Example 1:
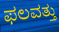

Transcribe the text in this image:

ಫಲವತ್ತು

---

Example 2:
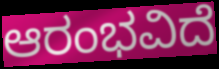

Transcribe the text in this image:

ಆರಂಭವಿದೆ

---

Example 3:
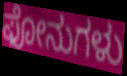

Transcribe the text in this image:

ಫೋನುಗಳು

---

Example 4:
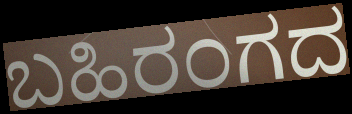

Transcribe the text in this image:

ಬಹಿರಂಗದ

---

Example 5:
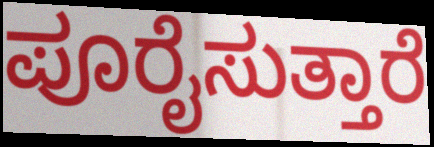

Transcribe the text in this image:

ಪೂರೈಸುತ್ತಾರೆ